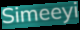
Simeeyi